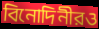
বিনোদিনীরও